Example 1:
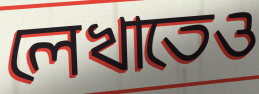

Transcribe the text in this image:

লেখাতেও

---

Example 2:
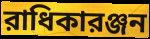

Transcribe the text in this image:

রাধিকারঞ্জন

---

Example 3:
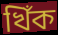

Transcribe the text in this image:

খিঁক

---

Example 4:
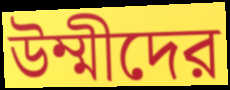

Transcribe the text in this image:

উম্মীদের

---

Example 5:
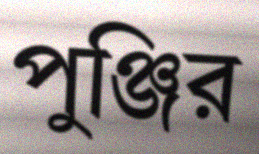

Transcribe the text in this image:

পুঞ্জির